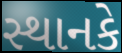
સ્થાનકે